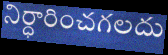
నిర్ధారించగలదు